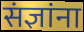
संज्ञांना